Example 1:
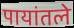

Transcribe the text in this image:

पायांतले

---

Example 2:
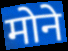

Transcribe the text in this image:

मोने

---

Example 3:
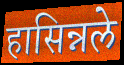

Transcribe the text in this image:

हासिन्नले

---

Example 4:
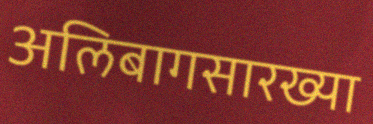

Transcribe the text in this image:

अलिबागसारख्या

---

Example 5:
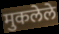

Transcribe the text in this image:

मुकलेले